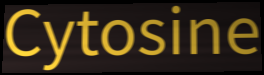
Cytosine